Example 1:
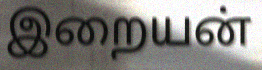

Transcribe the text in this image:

இறையன்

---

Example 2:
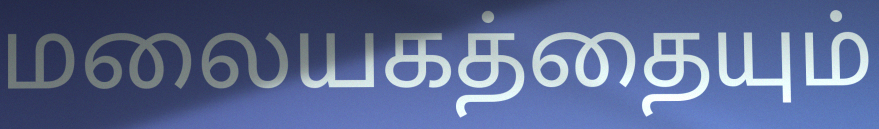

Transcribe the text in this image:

மலையகத்தையும்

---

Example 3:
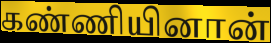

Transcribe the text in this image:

கண்ணியினான்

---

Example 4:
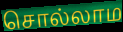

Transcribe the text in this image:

சொல்லாம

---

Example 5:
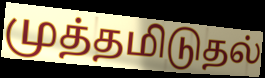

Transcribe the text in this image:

முத்தமிடுதல்